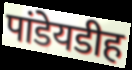
पांडेयडीह